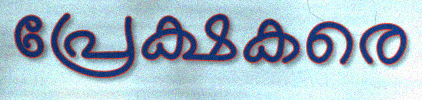
പ്രേക്ഷകരെ